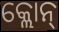
କ୍ଲୋନ୍